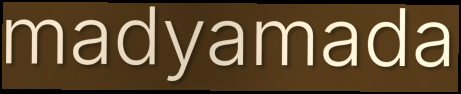
madyamada